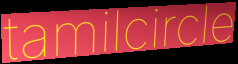
tamilcircle